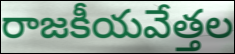
రాజకీయవేత్తల